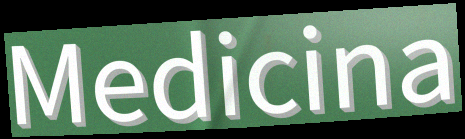
Medicina